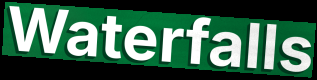
Waterfalls